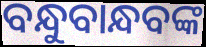
ବନ୍ଧୁବାନ୍ଧବଙ୍କ